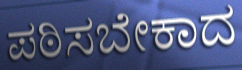
ಪಠಿಸಬೇಕಾದ